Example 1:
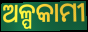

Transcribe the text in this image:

ଅଳ୍ପକାମୀ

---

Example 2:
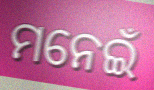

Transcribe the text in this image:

ମନେଇଁ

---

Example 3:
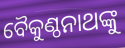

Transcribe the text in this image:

ବୈକୁଣ୍ଠନାଥଙ୍କୁ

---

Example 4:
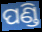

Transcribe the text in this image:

ପଣ୍ଡି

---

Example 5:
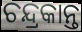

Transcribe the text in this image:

ଚନ୍ଦ୍ରକାନ୍ତ